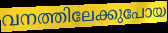
വനത്തിലേക്കുപോയ